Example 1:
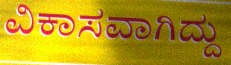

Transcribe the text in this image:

ವಿಕಾಸವಾಗಿದ್ದು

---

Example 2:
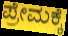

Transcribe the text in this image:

ಪ್ರೇಮಕ್ಕೆ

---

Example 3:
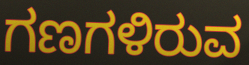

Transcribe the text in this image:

ಗಣಗಳಿರುವ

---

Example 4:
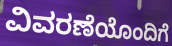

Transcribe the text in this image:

ವಿವರಣೆಯೊಂದಿಗೆ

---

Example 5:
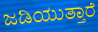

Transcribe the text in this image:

ಜಡಿಯುತ್ತಾರೆ